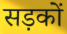
सड़कों